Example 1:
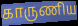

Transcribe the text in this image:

காருணிய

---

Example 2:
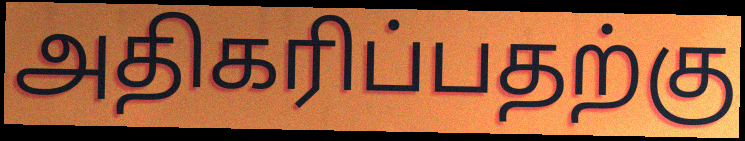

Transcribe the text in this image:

அதிகரிப்பதற்கு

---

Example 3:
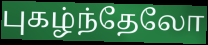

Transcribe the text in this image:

புகழ்ந்தேலோ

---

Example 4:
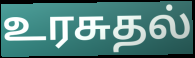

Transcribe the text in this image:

உரசுதல்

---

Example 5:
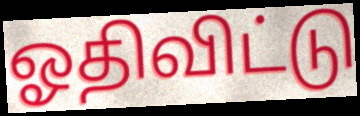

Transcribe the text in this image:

ஓதிவிட்டு